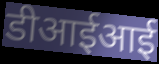
डीआईआई